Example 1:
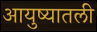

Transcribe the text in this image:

आयुष्यातली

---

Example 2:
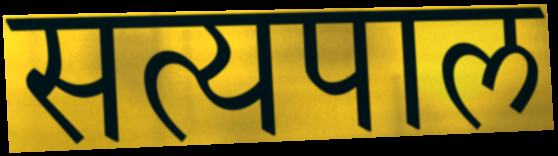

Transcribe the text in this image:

सत्यपाल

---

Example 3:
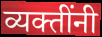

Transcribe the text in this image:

व्यक्तींनी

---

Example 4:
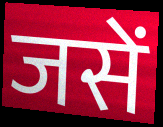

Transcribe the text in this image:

जसें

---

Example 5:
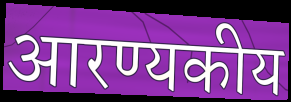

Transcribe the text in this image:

आरण्यकीय